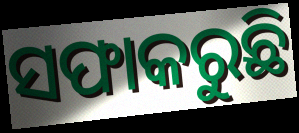
ସଫାକରୁଛି